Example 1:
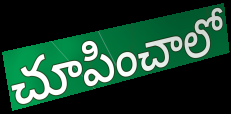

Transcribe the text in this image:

చూపించాలో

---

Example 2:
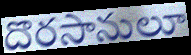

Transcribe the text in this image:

దొరసానులూ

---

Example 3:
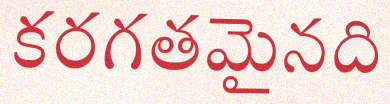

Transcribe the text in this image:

కరగతమైనది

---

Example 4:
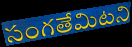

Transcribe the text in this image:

సంగతేమిటని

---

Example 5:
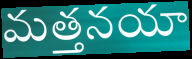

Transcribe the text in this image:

మత్తనయా